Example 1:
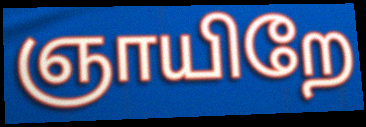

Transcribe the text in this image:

ஞாயிறே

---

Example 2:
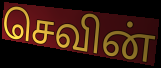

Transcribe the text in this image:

செவின்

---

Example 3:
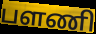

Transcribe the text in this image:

பளணி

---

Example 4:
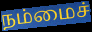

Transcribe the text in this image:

நம்மைச்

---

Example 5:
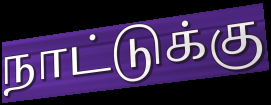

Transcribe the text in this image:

நாட்டுக்கு